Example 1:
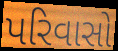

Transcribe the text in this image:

પરિવાસો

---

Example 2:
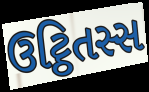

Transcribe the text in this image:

ઉટ્ઠિતસ્સ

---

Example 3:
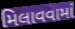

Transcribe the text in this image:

મિલાવવામાં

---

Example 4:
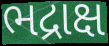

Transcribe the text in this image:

ભદ્રાક્ષ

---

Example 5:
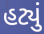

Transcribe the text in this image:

હટ્યું